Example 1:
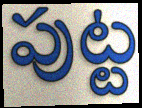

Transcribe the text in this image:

పుట్ట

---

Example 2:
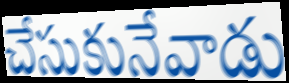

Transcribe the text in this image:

చేసుకునేవాడు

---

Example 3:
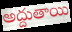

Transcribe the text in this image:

అద్దుతాయి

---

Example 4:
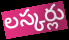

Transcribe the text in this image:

లస్కర్లు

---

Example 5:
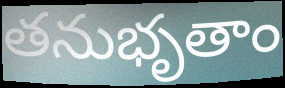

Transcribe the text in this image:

తనుభృతాం